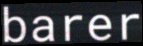
barer